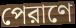
পেরাণে